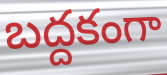
బద్దకంగా